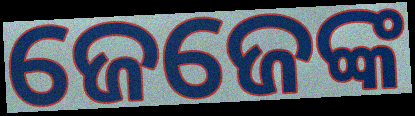
ଜେଜେଙ୍କ